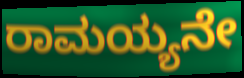
ರಾಮಯ್ಯನೇ